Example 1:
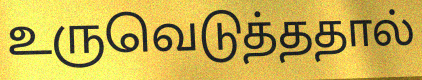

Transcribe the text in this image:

உருவெடுத்ததால்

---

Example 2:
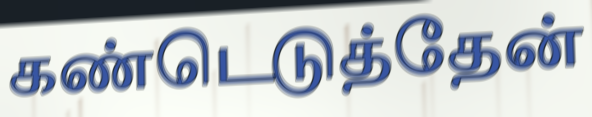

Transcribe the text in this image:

கண்டெடுத்தேன்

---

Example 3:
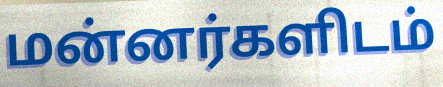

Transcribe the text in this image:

மன்னர்களிடம்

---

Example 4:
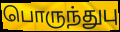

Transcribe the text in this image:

பொருந்துபு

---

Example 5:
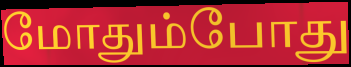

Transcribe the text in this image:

மோதும்போது